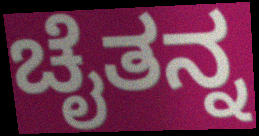
ಚೈತನ್ನ